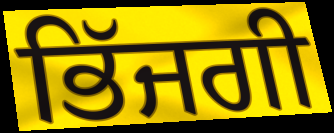
ਭਿੱਜਗੀ